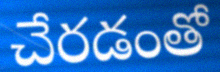
చేరడంతో